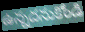
ఉన్నదనుకోండి